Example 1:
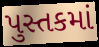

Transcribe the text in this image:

પુસ્તકમાં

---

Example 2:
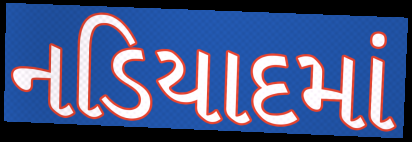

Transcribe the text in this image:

નડિયાદમાં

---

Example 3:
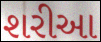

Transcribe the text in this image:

શરીઆ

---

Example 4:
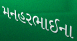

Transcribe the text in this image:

મનહરભાઈના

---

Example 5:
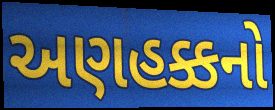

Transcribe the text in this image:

અણહક્કનો